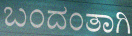
ಬಂದಂತಾಗಿ